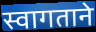
स्वागताने